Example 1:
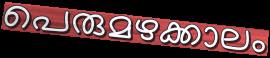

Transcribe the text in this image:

പെരുമഴക്കാലം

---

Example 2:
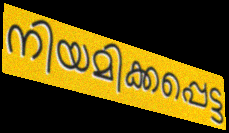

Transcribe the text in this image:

നിയമിക്കപ്പെട്ട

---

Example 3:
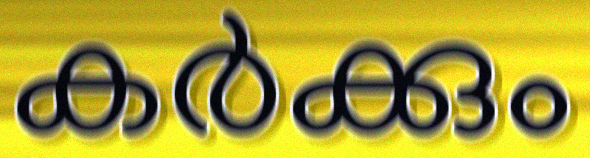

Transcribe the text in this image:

കർക്കും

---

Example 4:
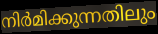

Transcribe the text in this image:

നിർമിക്കുന്നതിലും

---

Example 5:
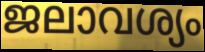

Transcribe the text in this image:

ജലാവശ്യം